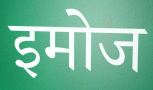
इमोज